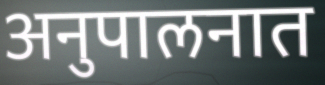
अनुपालनात